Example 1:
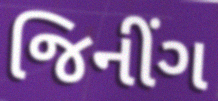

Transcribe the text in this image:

જિનીંગ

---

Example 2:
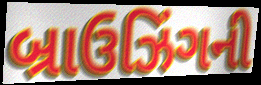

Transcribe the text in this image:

બ્રાઉઝિંગની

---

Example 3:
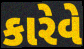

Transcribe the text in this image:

કારેવે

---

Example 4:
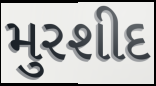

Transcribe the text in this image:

મુરશીદ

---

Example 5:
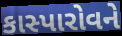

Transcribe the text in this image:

કાસ્પારોવને